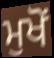
ਮੁਖੋਂ